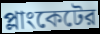
প্লাংকেটের